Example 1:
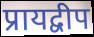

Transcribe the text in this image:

प्रायद्वीप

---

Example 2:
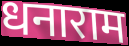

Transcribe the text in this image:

धनाराम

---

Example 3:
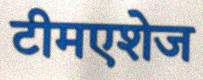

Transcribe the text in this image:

टीमएशेज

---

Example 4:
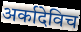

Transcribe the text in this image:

अर्कादेविच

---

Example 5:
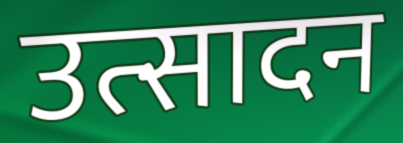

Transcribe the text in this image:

उत्सादन